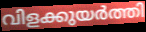
വിളക്കുയർത്തി